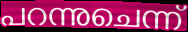
പറന്നുചെന്ന്